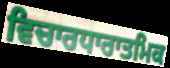
ਵਿਚਾਰਧਾਰਾਤਮਿਕ